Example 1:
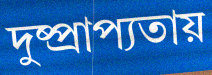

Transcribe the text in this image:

দুষ্প্রাপ্যতায়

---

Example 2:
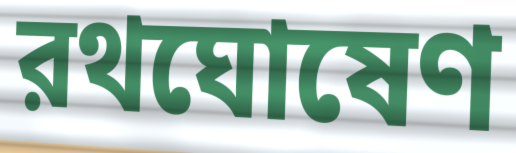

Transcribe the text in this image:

রথঘোষেণ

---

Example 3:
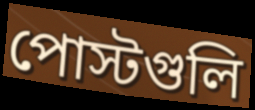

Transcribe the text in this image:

পোস্টগুলি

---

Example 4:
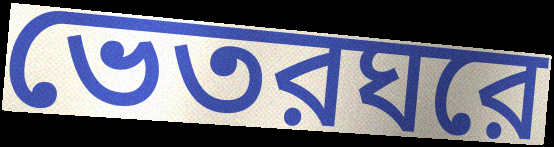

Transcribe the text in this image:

ভেতরঘরে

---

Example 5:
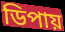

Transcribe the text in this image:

ডিপায়